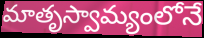
మాతృస్వామ్యంలోనే